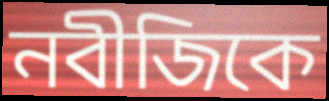
নবীজিকে